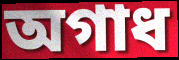
অগাধ